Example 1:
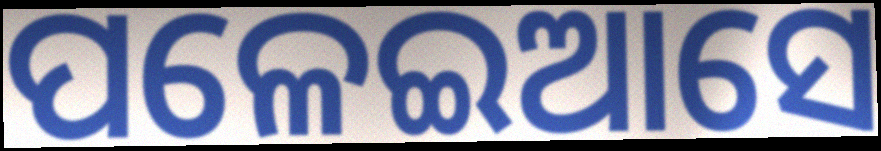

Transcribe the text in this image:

ପଳେଇଆସେ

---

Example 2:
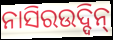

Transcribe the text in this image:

ନାସିରଉଦ୍ଦିନ୍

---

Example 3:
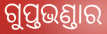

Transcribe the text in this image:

ଗୁପ୍ତଭଣ୍ଡାର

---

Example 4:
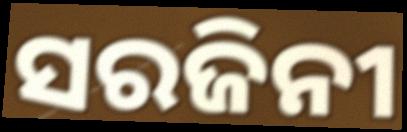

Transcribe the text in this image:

ସରଜିନୀ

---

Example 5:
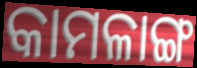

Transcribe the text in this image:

କାମଳାଙ୍ଗ